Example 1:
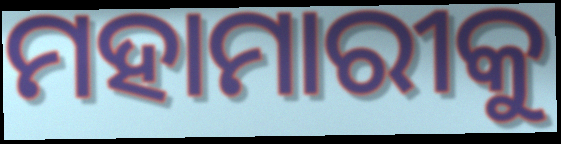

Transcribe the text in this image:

ମହାମାରୀକୁ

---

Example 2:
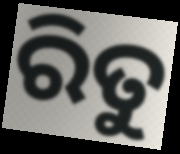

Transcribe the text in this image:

ରିତୁ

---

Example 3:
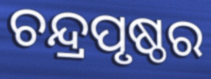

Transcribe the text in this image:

ଚନ୍ଦ୍ରପୃଷ୍ଠର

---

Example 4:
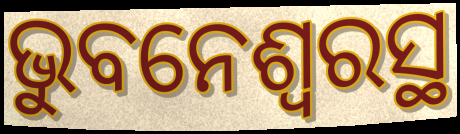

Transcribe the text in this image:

ଭୁବନେଶ୍ଵରସ୍ଥ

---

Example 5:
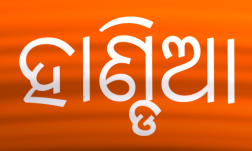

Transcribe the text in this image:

ହାଣ୍ଡିଆ